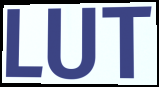
LUT